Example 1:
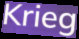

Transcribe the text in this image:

Krieg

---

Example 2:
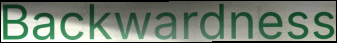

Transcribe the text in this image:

Backwardness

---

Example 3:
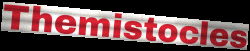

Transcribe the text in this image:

Themistocles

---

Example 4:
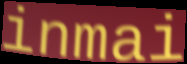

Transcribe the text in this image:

inmai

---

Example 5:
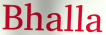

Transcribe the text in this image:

Bhalla